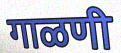
गाळणी